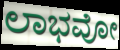
ಲಾಭವೋ